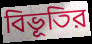
বিভূতির